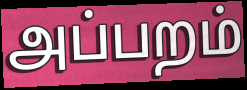
அப்பறம்